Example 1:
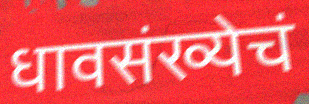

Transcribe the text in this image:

धावसंख्येचं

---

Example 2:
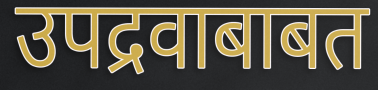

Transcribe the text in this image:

उपद्रवाबाबत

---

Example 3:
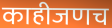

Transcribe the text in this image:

काहीजणच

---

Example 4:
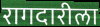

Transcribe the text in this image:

रागदारीला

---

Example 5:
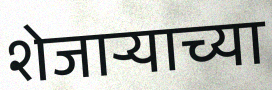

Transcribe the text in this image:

शेजार्‍याच्या